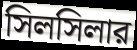
সিলসিলার